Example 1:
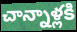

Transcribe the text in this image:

చాన్నాళ్లకి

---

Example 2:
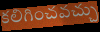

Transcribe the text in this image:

కలిగించవచ్చు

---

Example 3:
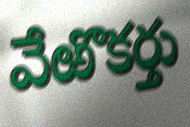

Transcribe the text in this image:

వేఱొకర్తు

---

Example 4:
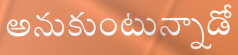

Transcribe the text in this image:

అనుకుంటున్నాడో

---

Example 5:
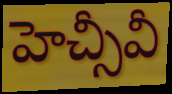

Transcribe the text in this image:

హెచ్సీవీ